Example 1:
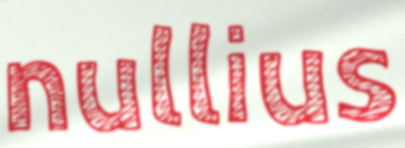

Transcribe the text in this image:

nullius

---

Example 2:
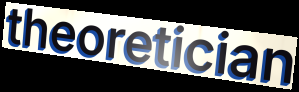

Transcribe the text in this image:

theoretician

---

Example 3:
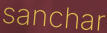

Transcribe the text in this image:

sanchar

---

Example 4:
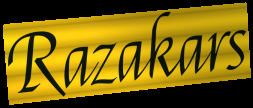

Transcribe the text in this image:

Razakars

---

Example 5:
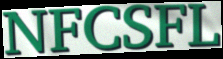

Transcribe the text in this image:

NFCSFL